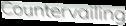
Countervailing